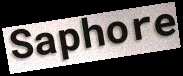
Saphore